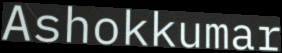
Ashokkumar